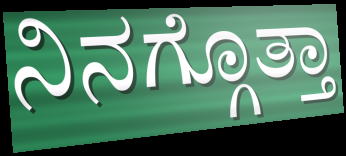
ನಿನಗ್ಗೊತ್ತಾ